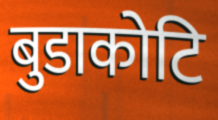
बुडाकोटि